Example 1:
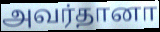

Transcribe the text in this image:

அவர்தானா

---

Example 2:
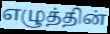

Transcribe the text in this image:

எழுத்தின்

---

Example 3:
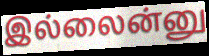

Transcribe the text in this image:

இல்லைன்னு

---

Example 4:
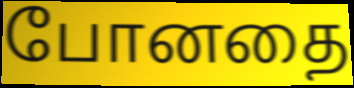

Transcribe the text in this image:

போனதை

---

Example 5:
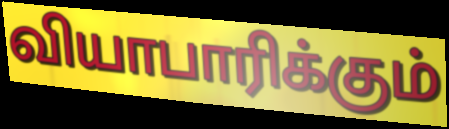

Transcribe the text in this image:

வியாபாரிக்கும்